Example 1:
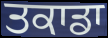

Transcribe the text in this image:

ਤਕਾਡਾ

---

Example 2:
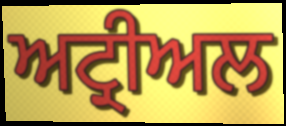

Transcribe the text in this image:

ਅਟ੍ਰੀਅਲ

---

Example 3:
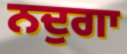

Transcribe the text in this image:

ਨਦੁਗਾ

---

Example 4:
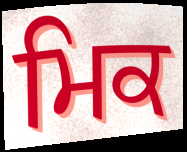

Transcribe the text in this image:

ਮਿਕ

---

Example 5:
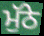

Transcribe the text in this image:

ਮੁੱਠੇ